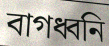
বাগধ্বনি